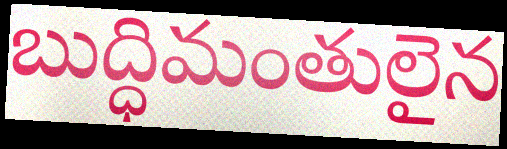
బుద్ధిమంతులైన